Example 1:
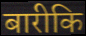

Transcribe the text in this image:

बारीकि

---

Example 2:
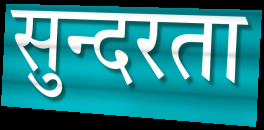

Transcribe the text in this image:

सुन्दरता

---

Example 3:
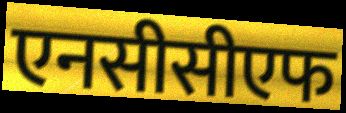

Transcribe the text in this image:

एनसीसीएफ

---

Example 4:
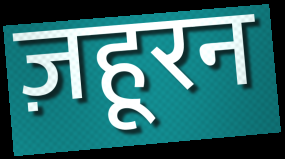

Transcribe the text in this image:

ज़हूरन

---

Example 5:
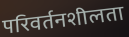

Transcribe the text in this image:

परिवर्तनशीलता